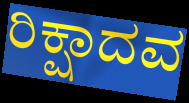
ರಿಕ್ಷಾದವ